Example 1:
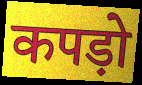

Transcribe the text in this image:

कपड़ो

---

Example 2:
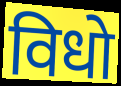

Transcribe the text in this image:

विधो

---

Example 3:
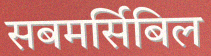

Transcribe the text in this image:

सबमर्सिबिल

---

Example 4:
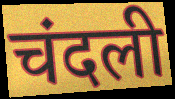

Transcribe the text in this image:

चंदली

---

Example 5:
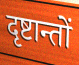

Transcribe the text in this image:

दृष्टान्तों